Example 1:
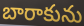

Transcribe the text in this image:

బారాకును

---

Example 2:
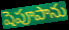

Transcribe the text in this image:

షెపూపాను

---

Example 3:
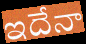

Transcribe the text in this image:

ఇదేనా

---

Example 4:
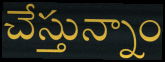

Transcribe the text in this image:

చేస్తున్నాం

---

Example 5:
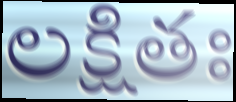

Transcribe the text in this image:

లక్షితః